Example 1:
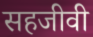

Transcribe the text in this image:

सहजीवी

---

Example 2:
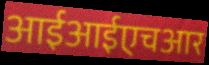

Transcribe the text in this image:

आईआईएचआर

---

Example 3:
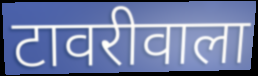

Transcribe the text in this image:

टावरीवाला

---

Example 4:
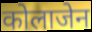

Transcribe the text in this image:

कोलाजेन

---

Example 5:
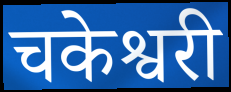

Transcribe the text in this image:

चकेश्वरी